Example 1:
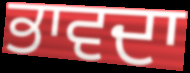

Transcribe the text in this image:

ਭਾਵਦਾ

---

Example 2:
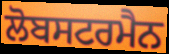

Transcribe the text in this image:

ਲੋਬਸਟਰਮੈਨ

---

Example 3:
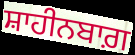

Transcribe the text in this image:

ਸ਼ਾਹੀਨਬਾਗ਼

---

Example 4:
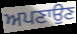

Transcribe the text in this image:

ਅਪਣਾਉਣ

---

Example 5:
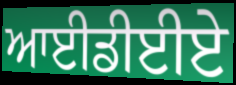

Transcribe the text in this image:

ਆਈਡੀਈਏ